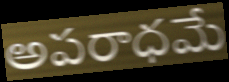
అపరాధమే